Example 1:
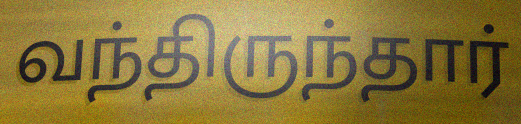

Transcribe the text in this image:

வந்திருந்தார்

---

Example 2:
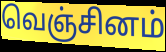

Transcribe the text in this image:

வெஞ்சினம்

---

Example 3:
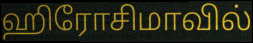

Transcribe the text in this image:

ஹிரோசிமாவில்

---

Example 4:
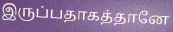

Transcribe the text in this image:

இருப்பதாகத்தானே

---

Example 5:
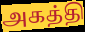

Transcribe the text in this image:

அகத்தி